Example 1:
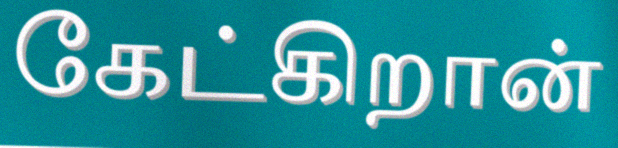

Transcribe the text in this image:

கேட்கிறான்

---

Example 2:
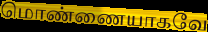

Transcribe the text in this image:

மொண்ணையாகவே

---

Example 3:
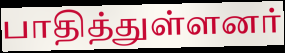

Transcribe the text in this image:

பாதித்துள்ளனர்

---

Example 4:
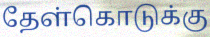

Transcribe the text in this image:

தேள்கொடுக்கு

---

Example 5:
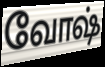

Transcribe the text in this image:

வோஷ்